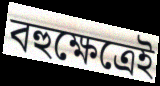
বহুক্ষেত্রেই